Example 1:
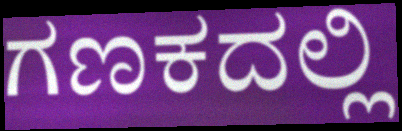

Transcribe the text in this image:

ಗಣಕದಲ್ಲಿ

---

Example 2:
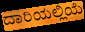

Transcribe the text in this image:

ದಾರಿಯಲ್ಲಿಯೆ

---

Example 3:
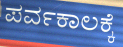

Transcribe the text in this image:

ಪರ್ವಕಾಲಕ್ಕೆ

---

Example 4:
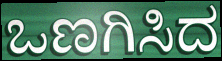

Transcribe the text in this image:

ಒಣಗಿಸಿದ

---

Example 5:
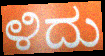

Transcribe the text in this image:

ಳಿದು